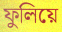
ফুলিয়ে